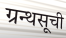
ग्रन्थसूची